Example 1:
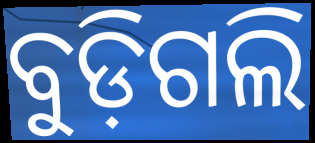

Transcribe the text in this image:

ବୁଡ଼ିଗଲି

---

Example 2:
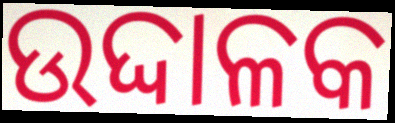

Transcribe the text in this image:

ଉଦ୍ଦାଳକ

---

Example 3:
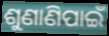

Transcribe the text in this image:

ଶୁଣାଣିପାଇଁ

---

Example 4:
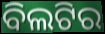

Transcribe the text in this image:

ବିଲଟିର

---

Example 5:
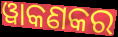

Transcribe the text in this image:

ୱାକଣକର